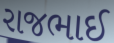
રાજભાઈ